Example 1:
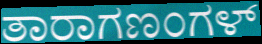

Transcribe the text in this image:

ತಾರಾಗಣಂಗಳ್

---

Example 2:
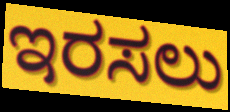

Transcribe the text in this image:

ಇರಸಲು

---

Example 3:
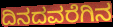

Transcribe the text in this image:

ದಿನದವರೆಗಿನ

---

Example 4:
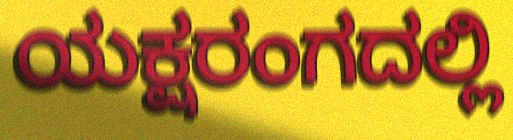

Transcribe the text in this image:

ಯಕ್ಷರಂಗದಲ್ಲಿ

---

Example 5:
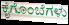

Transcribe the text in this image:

ಕೈಗೊಂಬೆಗಳು